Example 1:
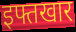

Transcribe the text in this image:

इफ्तखार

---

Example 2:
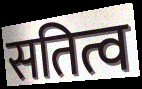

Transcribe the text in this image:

सतित्व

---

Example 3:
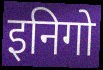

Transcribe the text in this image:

इनिगो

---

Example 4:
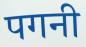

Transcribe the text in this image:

पगनी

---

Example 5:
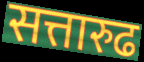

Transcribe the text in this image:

सत्तारुढ